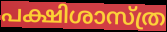
പക്ഷിശാസ്ത്ര